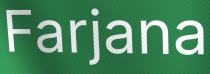
Farjana